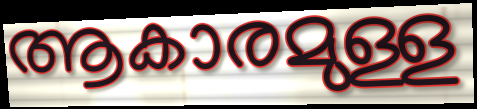
ആകാരമുള്ള